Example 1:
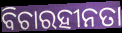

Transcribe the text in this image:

ବିଚାରହୀନତା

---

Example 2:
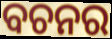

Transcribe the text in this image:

ବଚନର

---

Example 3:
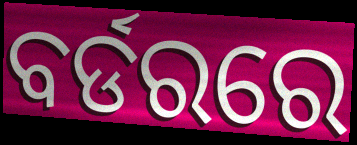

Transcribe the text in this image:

ବର୍ଡରରେ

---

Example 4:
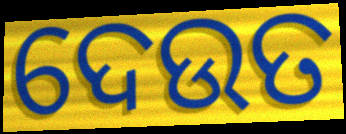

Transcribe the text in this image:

ଦେଉତ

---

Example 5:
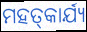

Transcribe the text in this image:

ମହତ୍‌କାର୍ଯ୍ୟ